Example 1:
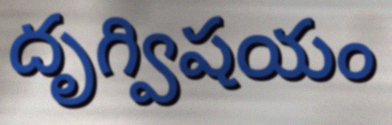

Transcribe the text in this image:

దృగ్విషయం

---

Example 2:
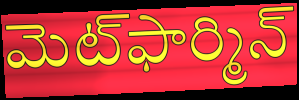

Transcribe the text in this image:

మెట్‌ఫార్మిన్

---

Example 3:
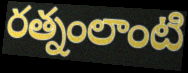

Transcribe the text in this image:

రత్నంలాంటి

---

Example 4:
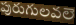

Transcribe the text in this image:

పురుగులవలె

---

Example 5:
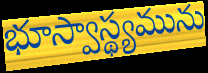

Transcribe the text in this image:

భూస్వాస్థ్యమును